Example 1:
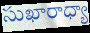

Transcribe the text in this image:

సుఖారాధ్యా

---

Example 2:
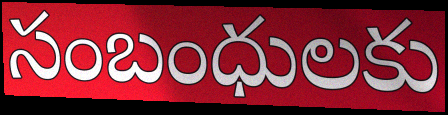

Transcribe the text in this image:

సంబంధులకు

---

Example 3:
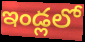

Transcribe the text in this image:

ఇండ్లలో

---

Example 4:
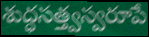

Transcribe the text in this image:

శుద్ధసత్త్వస్వరూపే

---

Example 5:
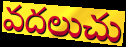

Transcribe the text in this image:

వదలుచు